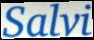
Salvi